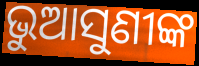
ଭୁଆସୁଣୀଙ୍କ